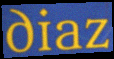
diaz